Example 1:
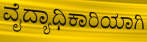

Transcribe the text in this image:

ವೈದ್ಯಾಧಿಕಾರಿಯಾಗಿ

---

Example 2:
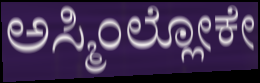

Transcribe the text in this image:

ಅಸ್ಮಿಂಲ್ಲೋಕೇ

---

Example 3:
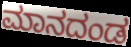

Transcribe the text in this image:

ಮಾನದಂಡ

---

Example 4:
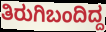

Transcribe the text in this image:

ತಿರುಗಿಬಂದಿದ್ದ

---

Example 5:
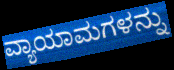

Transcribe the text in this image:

ವ್ಯಾಯಾಮಗಳನ್ನು